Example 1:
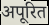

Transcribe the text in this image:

अपूरित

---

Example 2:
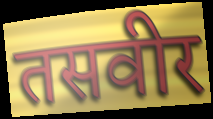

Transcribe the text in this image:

तसवीर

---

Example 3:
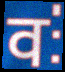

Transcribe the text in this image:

वः॑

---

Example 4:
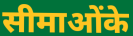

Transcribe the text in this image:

सीमाओंके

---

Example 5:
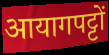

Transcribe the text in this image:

आयागपट्टों